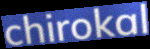
chirokal